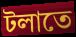
টলাতে